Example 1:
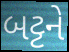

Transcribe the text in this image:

બટ્ટને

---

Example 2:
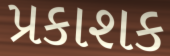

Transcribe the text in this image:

પ્રકાશક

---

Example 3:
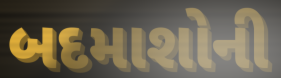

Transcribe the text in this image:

બદમાશોની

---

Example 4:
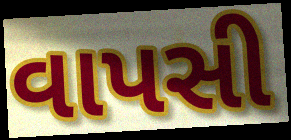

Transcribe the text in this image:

વાપસી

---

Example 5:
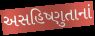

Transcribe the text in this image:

અસહિષ્ણુતાનાં